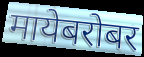
मायेबरोबर